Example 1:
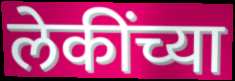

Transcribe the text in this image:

लेकींच्या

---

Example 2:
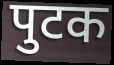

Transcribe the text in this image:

पुटक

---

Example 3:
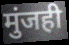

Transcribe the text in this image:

मुंजही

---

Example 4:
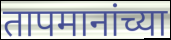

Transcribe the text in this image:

तापमानांच्या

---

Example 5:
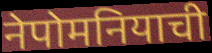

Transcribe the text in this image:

नेपोमनियाची